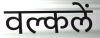
वल्कलें